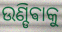
ଉଣ୍ଡିଵାକୁ